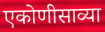
एकोणीसाव्या